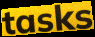
tasks